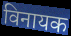
विनायक